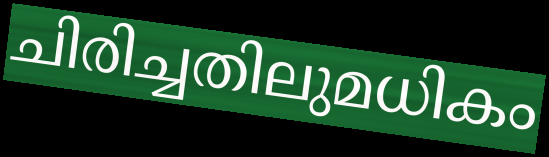
ചിരിച്ചതിലുമധികം